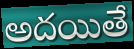
అదయితే